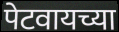
पेटवायच्या